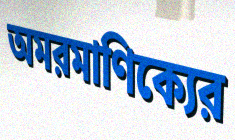
অমরমাণিক্যের